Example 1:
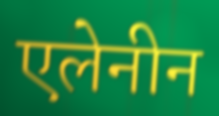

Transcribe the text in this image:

एलेनीन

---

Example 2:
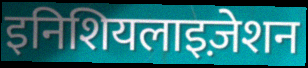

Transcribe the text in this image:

इनिशियलाइज़ेशन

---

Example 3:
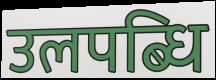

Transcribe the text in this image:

उलपब्धि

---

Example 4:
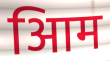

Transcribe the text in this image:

आिम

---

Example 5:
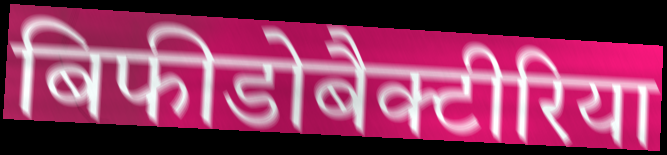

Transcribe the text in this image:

बिफीडोबैक्टीरिया